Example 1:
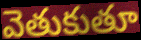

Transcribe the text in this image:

వెతుకుతూ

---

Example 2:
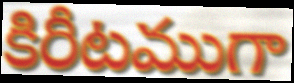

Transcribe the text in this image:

కిరీటముగా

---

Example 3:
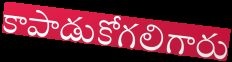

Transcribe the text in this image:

కాపాడుకోగలిగారు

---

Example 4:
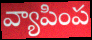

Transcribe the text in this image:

వ్యాపింప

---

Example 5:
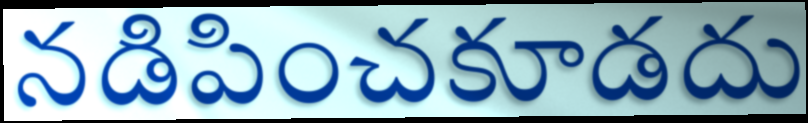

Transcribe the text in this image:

నడిపించకూడదు